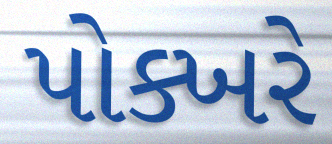
પોક્ખરે